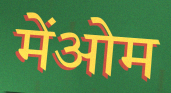
मेंओम